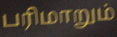
பரிமாறும்